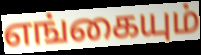
எங்கையும்